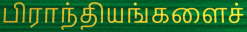
பிராந்தியங்களைச்